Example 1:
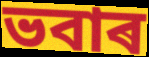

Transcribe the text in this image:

ভবাৰ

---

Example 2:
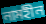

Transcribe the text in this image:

নামহীন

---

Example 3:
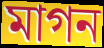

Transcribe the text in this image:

মাগন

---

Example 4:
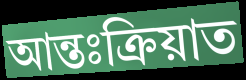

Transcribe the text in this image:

আন্তঃক্ৰিয়াত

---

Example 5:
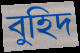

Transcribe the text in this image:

বুহিদ